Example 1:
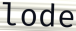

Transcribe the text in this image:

lode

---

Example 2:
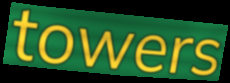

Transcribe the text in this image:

towers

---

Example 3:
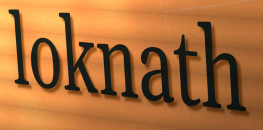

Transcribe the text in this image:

loknath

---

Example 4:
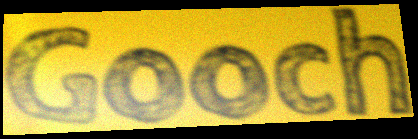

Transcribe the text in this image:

Gooch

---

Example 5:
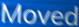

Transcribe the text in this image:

Moved